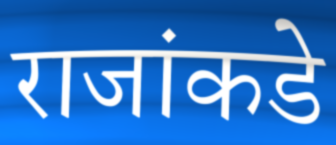
राजांकडे